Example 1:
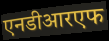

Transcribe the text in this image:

एनडीआरएफ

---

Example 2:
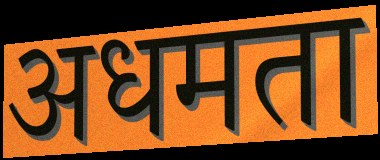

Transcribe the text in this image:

अधमता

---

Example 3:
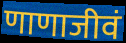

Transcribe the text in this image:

णाणाजीवं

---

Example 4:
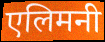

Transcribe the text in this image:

एलिमनी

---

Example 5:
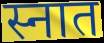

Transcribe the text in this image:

स्नात